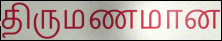
திருமணமான